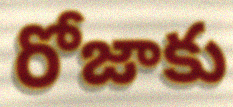
రోజాకు